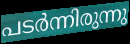
പടർന്നിരുന്നു